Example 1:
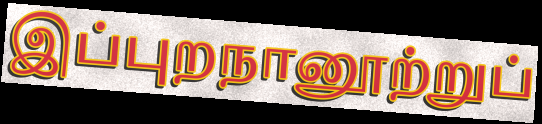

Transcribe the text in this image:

இப்புறநானூற்றுப்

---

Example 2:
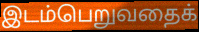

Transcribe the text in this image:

இடம்பெறுவதைக்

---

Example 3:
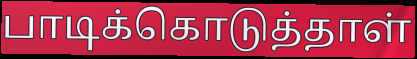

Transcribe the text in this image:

பாடிக்கொடுத்தாள்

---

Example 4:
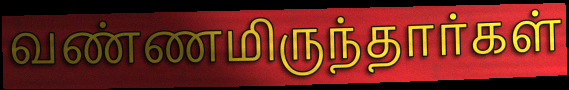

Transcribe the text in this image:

வண்ணமிருந்தார்கள்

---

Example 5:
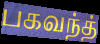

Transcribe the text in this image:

பகவந்த்